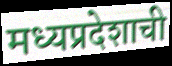
मध्यप्रदेशाची